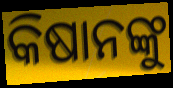
କିଷାନଙ୍କୁ